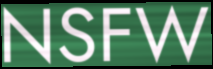
NSFW